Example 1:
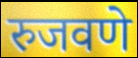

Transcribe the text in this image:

रुजवणे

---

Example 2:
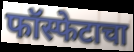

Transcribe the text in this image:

फॉस्फेटाचा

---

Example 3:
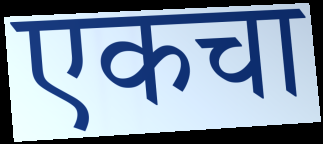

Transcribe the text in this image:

एकचा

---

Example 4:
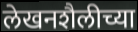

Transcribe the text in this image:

लेखनशैलीच्या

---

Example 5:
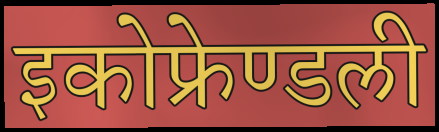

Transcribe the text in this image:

इकोफ्रेण्डली